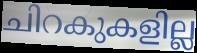
ചിറകുകളില്ല